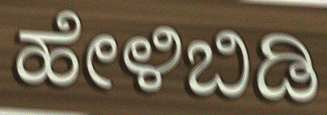
ಹೇಳಿಬಿಡಿ